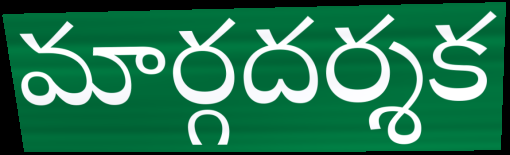
మార్గదర్శక